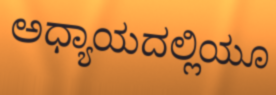
ಅಧ್ಯಾಯದಲ್ಲಿಯೂ